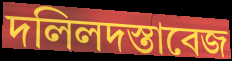
দলিলদস্তাবেজ